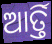
ଆର୍ତ୍ତି